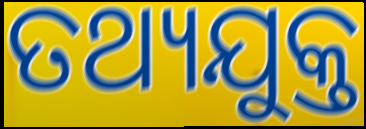
ତଥ୍ୟଯୁକ୍ତ